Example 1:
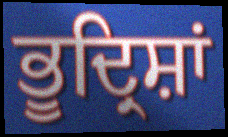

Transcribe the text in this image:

ਭੂਦ੍ਰਿਸ਼ਾਂ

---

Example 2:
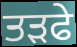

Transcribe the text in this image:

ਤੜਫੇ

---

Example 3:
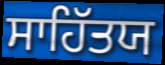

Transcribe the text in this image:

ਸਾਹਿੱਤਯ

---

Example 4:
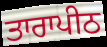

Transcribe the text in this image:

ਤਾਰਾਪੀਠ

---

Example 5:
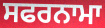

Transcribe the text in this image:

ਸਫਰਨਾਮਾ